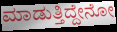
ಮಾಡುತ್ತಿದ್ದೇನೋ